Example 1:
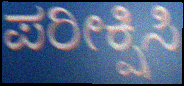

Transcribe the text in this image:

ಪರೀಕ್ಷಿಸಿ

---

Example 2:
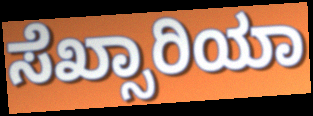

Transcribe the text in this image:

ಸೆಖ್ಸಾರಿಯಾ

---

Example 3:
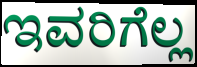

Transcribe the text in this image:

ಇವರಿಗೆಲ್ಲ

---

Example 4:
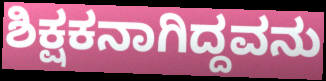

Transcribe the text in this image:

ಶಿಕ್ಷಕನಾಗಿದ್ದವನು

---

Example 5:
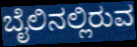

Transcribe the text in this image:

ಬೈಲಿನಲ್ಲಿರುವ